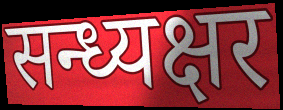
सन्ध्यक्षर